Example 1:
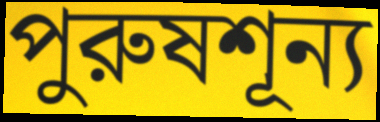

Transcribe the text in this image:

পুরুষশূন্য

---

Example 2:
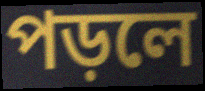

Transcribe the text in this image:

পড়লে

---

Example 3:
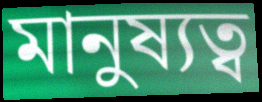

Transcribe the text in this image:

মানুষ্যত্ব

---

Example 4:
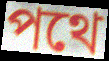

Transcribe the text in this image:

পথে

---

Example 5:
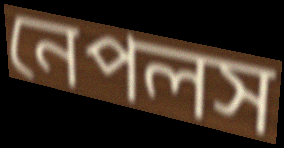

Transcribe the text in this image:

নেপলস